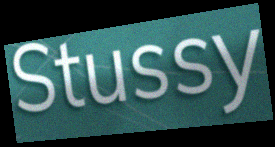
Stussy